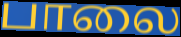
பாலை